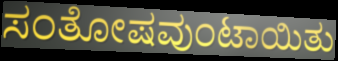
ಸಂತೋಷವುಂಟಾಯಿತು